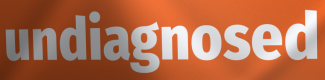
undiagnosed